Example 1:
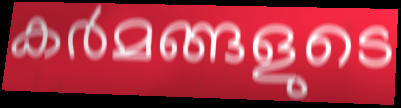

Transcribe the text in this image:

കർമങ്ങളുടെ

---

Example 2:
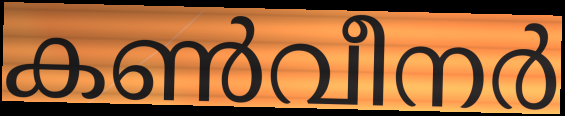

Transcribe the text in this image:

കൺവീനർ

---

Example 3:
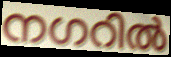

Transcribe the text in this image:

നഗറിൽ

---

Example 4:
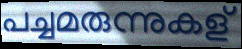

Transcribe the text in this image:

പച്ചമരുന്നുകള്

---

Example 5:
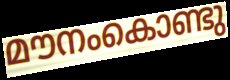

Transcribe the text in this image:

മൗനംകൊണ്ടു